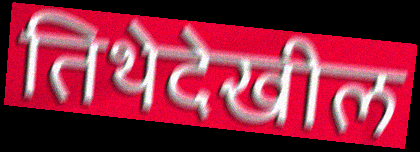
तिथेदेखील